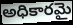
అధికారమై